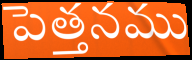
పెత్తనము